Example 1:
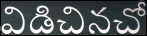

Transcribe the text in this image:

విడిచినచో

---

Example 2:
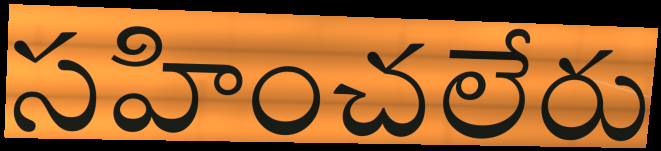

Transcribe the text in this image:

సహించలేరు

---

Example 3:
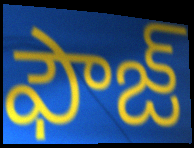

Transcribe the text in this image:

ఫౌజ్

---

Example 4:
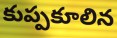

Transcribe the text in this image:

కుప్పకూలిన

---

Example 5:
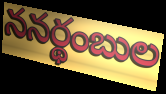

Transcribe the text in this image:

ననర్థంబుల